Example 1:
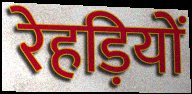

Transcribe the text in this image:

रेहड़ियों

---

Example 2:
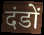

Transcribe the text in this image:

दंडों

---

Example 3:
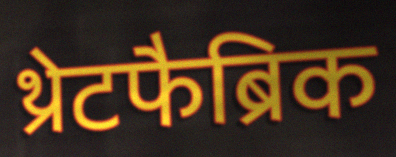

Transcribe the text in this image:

थ्रेटफैब्रिक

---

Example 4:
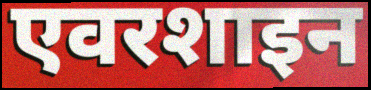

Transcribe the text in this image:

एवरशाइन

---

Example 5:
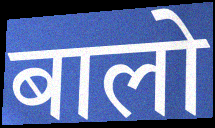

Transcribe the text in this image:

बालो